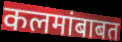
कलमांबाबत